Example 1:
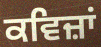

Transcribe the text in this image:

ਕਵਿਜ਼ਾਂ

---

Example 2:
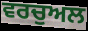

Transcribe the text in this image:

ਵਰਚੁਅਲ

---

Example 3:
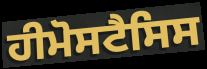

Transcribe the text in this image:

ਹੀਮੋਸਟੈਸਿਸ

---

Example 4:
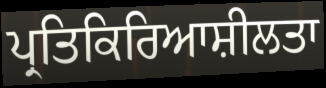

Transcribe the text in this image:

ਪ੍ਰਤਿਕਿਰਿਆਸ਼ੀਲਤਾ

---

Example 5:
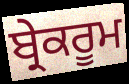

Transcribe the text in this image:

ਬ੍ਰੇਕਰੂਮ